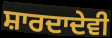
ਸ਼ਾਰਦਾਦੇਵੀ